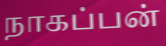
நாகப்பன்